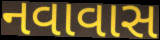
નવાવાસ